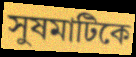
সুষমাটিকে